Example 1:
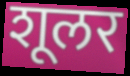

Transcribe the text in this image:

शूलर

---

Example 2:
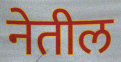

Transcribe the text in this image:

नेतील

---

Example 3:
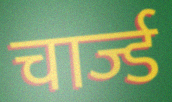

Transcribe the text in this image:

चार्ज्ड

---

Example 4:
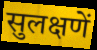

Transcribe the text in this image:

सुलक्षणें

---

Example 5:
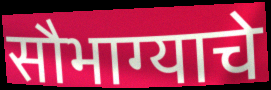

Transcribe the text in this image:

सौभाग्याचे